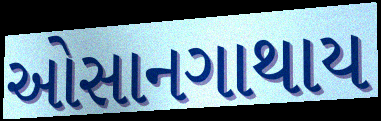
ઓસાનગાથાય